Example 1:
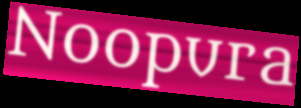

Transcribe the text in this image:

Noopura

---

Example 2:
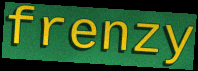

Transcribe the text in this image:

frenzy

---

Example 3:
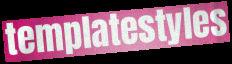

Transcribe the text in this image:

templatestyles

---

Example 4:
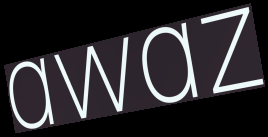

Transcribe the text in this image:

awaz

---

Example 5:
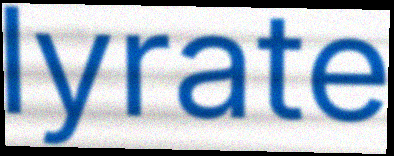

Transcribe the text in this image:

lyrate